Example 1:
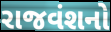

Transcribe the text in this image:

રાજવંશનો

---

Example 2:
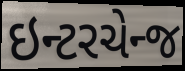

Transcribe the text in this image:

ઇન્ટરચેન્જ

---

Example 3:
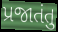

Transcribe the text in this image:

પ્રજાતંતુ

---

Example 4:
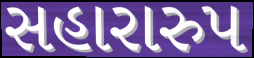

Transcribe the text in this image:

સહારારુપ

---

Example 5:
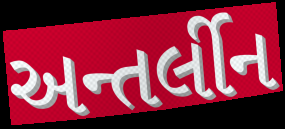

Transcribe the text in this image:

અન્તર્લીન